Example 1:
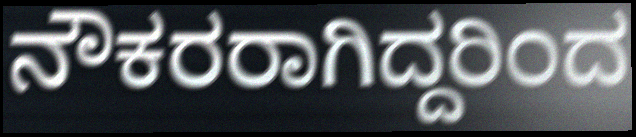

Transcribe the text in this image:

ನೌಕರರಾಗಿದ್ದರಿಂದ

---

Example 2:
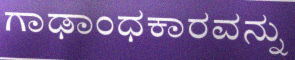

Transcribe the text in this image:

ಗಾಢಾಂಧಕಾರವನ್ನು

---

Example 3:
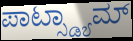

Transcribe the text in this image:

ಪಾಟ್ಸ್ಡ್ಯಾಮ್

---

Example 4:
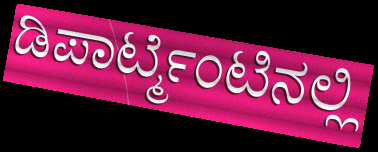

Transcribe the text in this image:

ಡಿಪಾರ್ಟ್ಮೆಂಟಿನಲ್ಲಿ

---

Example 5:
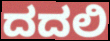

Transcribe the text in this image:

ದದಲಿ